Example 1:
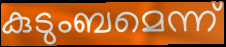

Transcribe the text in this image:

കുടുംബമെന്ന്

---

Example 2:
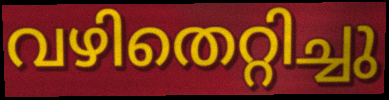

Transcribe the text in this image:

വഴിതെറ്റിച്ചു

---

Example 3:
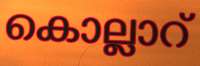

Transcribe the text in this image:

കൊല്ലാറ്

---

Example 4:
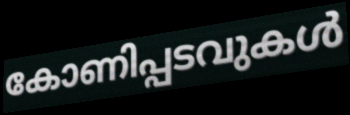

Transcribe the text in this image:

കോണിപ്പടവുകൾ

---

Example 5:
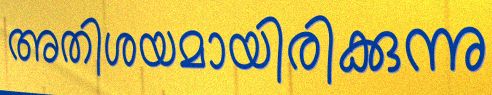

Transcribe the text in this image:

അതിശയമായിരിക്കുന്നു